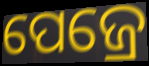
ପେଜ୍ରେ